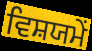
ਵਿਸ਼ਯਮੇਂ